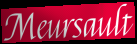
Meursault